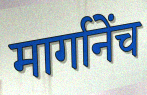
मार्गानेंच